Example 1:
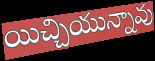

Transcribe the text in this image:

యిచ్చియున్నావు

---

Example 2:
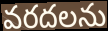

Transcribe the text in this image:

వరదలను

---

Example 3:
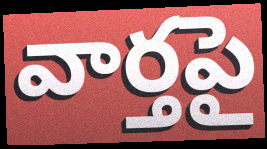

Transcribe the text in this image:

వార్తపై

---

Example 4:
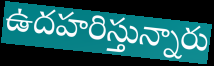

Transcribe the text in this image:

ఉదహరిస్తున్నారు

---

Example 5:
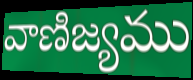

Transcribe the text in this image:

వాణిజ్యము